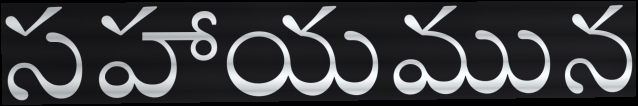
సహాయమున